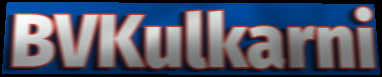
BVKulkarni